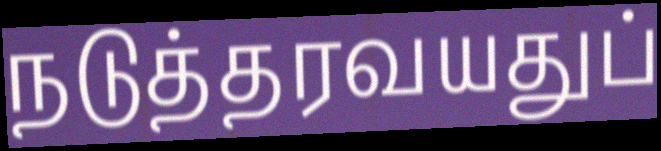
நடுத்தரவயதுப்